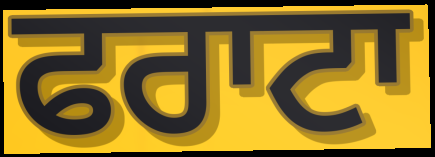
ਫਰਾਟਾ